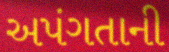
અપંગતાની